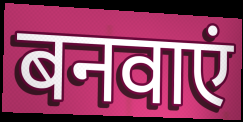
बनवाएं